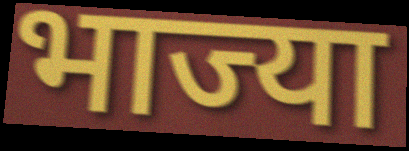
भाज्या